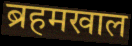
ब्रहमखाल